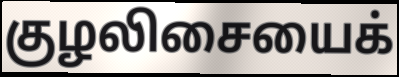
குழலிசையைக்